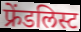
फ्रेंडलिस्ट